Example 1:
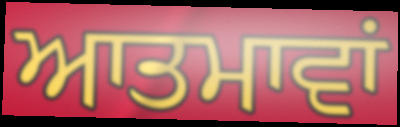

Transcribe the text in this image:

ਆਤਮਾਵਾਂ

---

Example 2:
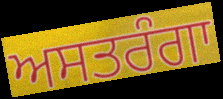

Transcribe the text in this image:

ਅਸਤਰੰਗਾ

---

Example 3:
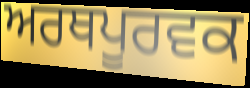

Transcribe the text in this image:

ਅਰਥਪੂਰਵਕ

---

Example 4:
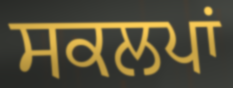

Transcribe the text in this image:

ਸਕਲਪਾਂ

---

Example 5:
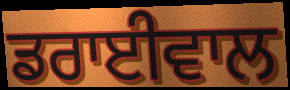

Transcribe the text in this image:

ਡਰਾਈਵਾਲ